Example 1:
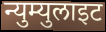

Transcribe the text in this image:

न्युम्युलाइट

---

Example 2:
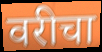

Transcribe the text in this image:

वरीचा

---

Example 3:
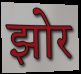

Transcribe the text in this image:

झोर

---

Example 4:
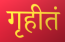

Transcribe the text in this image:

गृहीतं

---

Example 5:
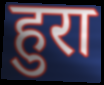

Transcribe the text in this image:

हुरा